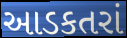
આડકતરાં